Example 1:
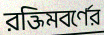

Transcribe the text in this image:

রক্তিমবর্ণের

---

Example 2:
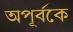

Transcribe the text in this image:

অপূর্বকে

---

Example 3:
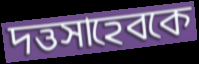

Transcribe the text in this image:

দত্তসাহেবকে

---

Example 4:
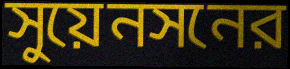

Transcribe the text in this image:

সুয়েনসনের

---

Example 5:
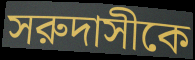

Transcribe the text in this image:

সরুদাসীকে